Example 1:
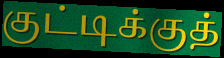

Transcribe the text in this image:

குட்டிக்குத்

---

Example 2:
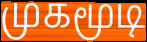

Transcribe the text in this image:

முகமூடி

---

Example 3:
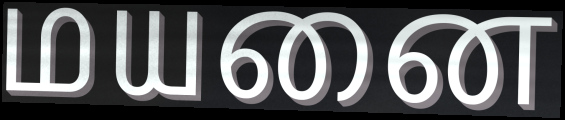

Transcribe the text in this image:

மயனை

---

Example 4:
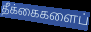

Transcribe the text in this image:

தீக்கைகளைப்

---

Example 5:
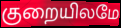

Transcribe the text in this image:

குறையிலமே